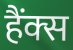
हैंक्‍स